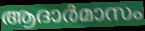
ആദാർമാസം